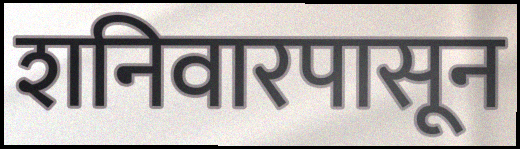
शनिवारपासून